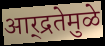
आर्द्रतेमुळे